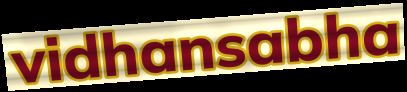
vidhansabha